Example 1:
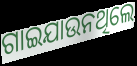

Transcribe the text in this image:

ଗାଇଯାଉନଥିଲେ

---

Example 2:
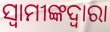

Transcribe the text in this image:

ସ୍ୱାମୀଙ୍କଦ୍ୱାରା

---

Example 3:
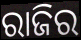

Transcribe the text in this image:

ରାଜିର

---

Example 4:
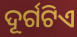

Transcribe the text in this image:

ଦୂର୍ଗଟିଏ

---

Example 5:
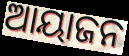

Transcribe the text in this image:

ଆୟାଜନ